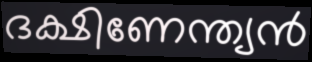
ദക്ഷിണേന്ത്യൻ